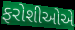
ફરોશીઓએ